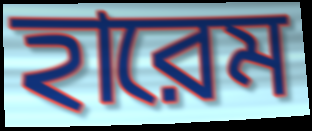
হারেম